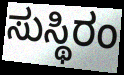
ಸುಸ್ಥಿರಂ